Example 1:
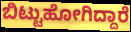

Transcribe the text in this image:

ಬಿಟ್ಟುಹೋಗಿದ್ದಾರೆ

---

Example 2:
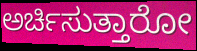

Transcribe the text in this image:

ಅರ್ಚಿಸುತ್ತಾರೋ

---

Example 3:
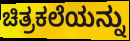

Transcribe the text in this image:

ಚಿತ್ರಕಲೆಯನ್ನು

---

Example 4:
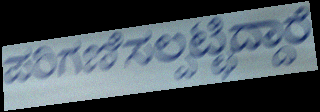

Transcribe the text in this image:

ಪರಿಗಣಿಸಲ್ಪಟ್ಟಿದ್ದಾರೆ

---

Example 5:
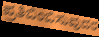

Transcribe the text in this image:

ಪ್ರತಿಬಿಂಬಿಸುವುದರ